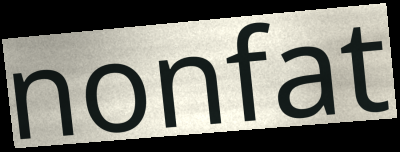
nonfat